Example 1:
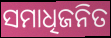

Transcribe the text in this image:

ସମାଧିଜନିତ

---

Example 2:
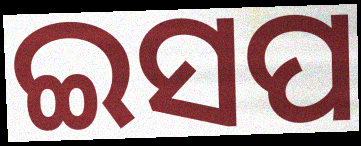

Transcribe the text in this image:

ଇସପ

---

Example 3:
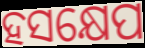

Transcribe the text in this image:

ହସକ୍ଷେପ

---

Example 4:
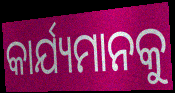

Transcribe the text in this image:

କାର୍ଯ୍ୟମାନକୁ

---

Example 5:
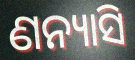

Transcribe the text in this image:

ଣନ୍ୟାସି